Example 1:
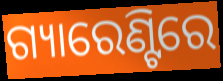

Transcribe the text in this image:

ଗ୍ୟାରେଣ୍ଟିରେ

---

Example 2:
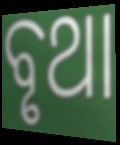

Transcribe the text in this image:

ବୃଥା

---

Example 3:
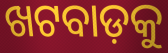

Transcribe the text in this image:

ଖଟବାଡ଼କୁ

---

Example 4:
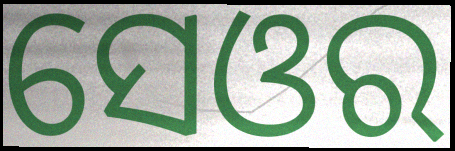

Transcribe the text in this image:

ସେଓର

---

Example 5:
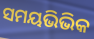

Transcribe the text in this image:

ସମୟଭିଭିକ